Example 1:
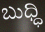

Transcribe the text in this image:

ಬುಧ್ಧಿ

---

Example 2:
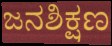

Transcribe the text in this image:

ಜನಶಿಕ್ಷಣ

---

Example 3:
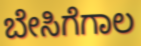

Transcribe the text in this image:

ಬೇಸಿಗೆಗಾಲ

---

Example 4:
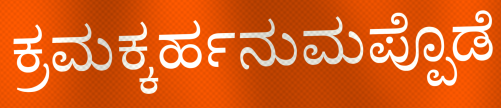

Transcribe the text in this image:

ಕ್ರಮಕ್ಕರ್ಹನುಮಪ್ಪೊಡೆ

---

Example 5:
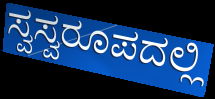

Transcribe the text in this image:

ಸ್ವಸ್ವರೂಪದಲ್ಲಿ